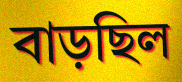
বাড়ছিল